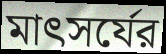
মাৎসর্যের